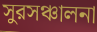
সুরসঞ্চালনা